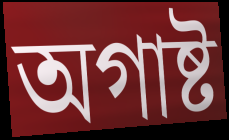
অগাষ্ট